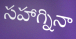
సహాగ్నినా